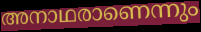
അനാഥരാണെന്നും